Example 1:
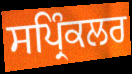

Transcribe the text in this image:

ਸਪ੍ਰਿੰਕਲਰ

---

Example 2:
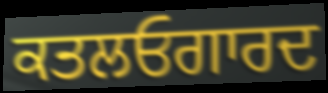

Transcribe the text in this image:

ਕਤਲਓਗਾਰਦ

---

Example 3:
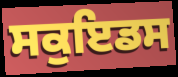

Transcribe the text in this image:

ਸਕੁਇਡਸ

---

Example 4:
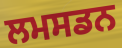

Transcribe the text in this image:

ਲਮਸਡਨ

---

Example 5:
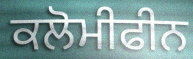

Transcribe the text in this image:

ਕਲੋਮੀਫੀਨ